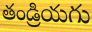
తండ్రియగు